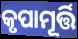
କୃପାମୂର୍ତ୍ତି